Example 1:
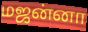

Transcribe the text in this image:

மஜன்னா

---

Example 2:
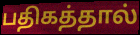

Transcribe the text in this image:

பதிகத்தால்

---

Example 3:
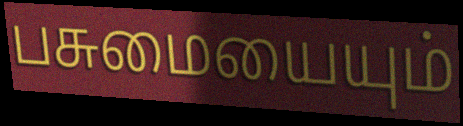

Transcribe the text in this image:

பசுமையையும்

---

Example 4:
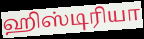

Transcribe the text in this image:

ஹிஸ்டிரியா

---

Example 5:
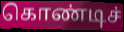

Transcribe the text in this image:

கொண்டிச்